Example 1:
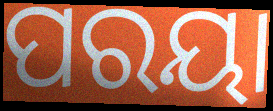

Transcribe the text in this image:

ପରୟା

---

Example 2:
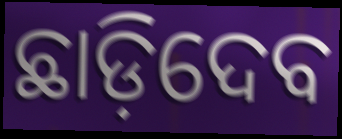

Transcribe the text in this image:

ଛାଡ଼ିଦେବ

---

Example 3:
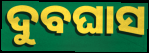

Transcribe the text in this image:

ଦୁବଘାସ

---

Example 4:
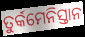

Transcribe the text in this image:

ତୁର୍କମେନିସ୍ତାନ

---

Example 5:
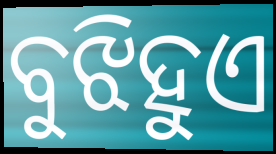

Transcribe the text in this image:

ବୁଝିହୁଏ